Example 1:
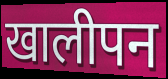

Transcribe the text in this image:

खालीपन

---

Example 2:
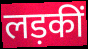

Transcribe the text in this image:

लड़कीं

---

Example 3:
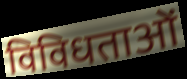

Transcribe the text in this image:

विविधताओं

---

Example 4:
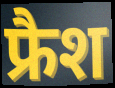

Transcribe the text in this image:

फ्रैश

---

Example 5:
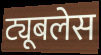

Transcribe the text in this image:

ट्यूबलेस